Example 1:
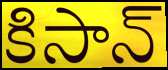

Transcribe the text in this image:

కిసాన్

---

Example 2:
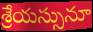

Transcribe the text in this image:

శ్రేయస్సునూ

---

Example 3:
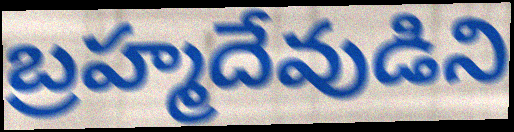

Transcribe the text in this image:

బ్రహ్మదేవుడిని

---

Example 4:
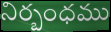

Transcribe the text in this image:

నిర్బంధము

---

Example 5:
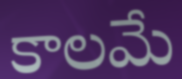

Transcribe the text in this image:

కాలమే